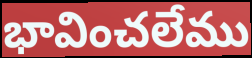
భావించలేము